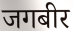
जगबीर